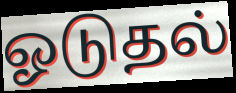
ஓடுதல்